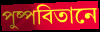
পুষ্পবিতানে